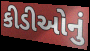
કીડીઓનું